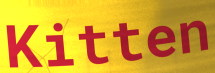
Kitten